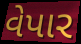
વેપાર